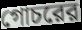
গোচরের